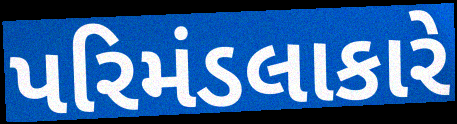
પરિમંડલાકારે